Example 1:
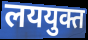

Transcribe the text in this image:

लययुक्त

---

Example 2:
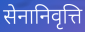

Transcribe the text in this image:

सेनानिवृत्ति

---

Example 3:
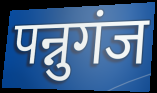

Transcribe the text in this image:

पन्नुगंज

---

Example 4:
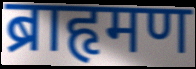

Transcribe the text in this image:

ब्राहृमण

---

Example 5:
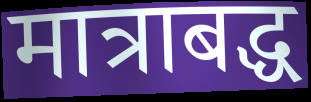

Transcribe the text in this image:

मात्राबद्ध